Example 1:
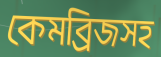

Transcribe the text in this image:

কেমব্রিজসহ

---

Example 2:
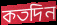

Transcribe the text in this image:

কতদিন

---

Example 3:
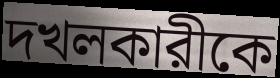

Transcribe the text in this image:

দখলকারীকে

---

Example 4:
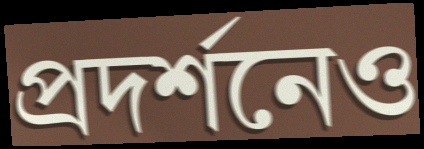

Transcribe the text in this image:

প্রদর্শনেও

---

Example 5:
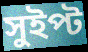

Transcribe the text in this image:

সুইপ্ট